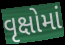
વૃક્ષોમાં